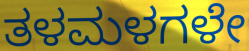
ತಳಮಳಗಳೇ